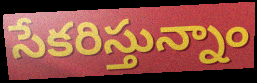
సేకరిస్తున్నాం